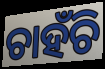
ଚାହଁଚି